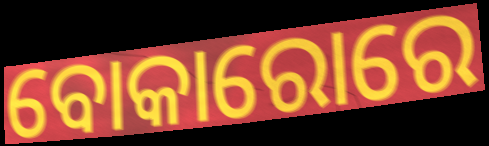
ବୋକାରୋରେ